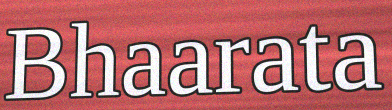
Bhaarata